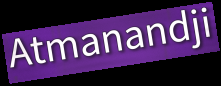
Atmanandji